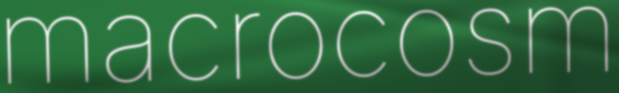
macrocosm